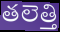
తలెత్తి